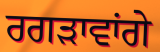
ਰਗੜਾਵਾਂਗੇ